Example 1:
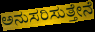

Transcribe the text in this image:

ಅನುಸರಿಸುತ್ತೇನೆ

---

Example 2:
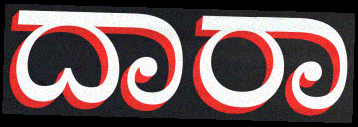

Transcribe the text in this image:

ದಾರಾ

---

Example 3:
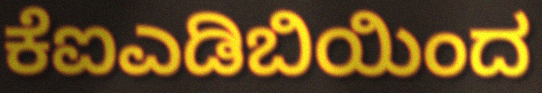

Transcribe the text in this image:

ಕೆಐಎಡಿಬಿಯಿಂದ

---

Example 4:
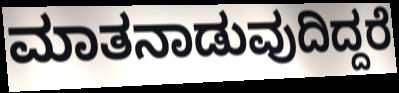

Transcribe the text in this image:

ಮಾತನಾಡುವುದಿದ್ದರೆ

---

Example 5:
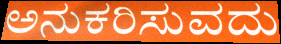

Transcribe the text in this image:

ಅನುಕರಿಸುವದು